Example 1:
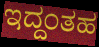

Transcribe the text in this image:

ಇದ್ದಂತಹ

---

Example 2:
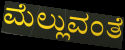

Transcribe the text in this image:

ಮೆಲ್ಲುವಂತೆ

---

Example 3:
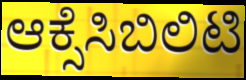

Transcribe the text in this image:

ಆಕ್ಸೆಸಿಬಿಲಿಟಿ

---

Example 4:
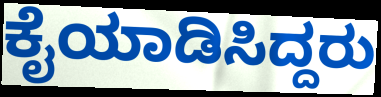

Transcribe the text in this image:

ಕೈಯಾಡಿಸಿದ್ದರು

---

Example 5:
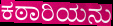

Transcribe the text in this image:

ಕಠಾರಿಯನು